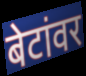
बेटांवर